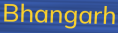
Bhangarh